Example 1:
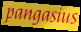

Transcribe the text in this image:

pangasius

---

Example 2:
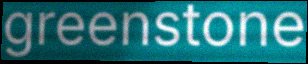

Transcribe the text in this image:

greenstone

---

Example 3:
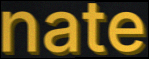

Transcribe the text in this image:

nate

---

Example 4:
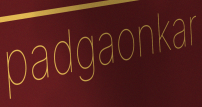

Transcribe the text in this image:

padgaonkar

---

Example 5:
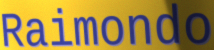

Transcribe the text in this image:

Raimondo